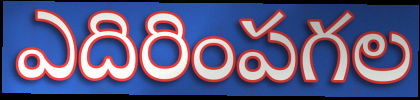
ఎదిరింపగల